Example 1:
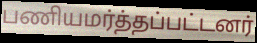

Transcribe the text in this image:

பணியமர்த்தப்பட்டனர்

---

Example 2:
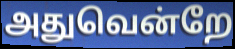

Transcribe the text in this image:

அதுவென்றே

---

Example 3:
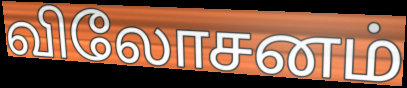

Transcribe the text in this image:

விலோசனம்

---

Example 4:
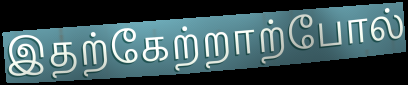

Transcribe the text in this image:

இதற்கேற்றாற்போல்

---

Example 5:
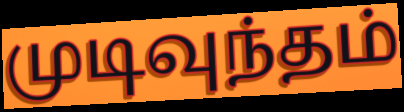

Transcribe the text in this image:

முடிவுந்தம்